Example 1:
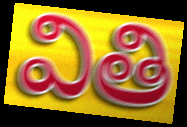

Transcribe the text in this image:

వితి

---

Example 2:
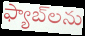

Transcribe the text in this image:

ఫ్యాబ్‌లను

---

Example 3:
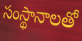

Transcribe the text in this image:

సంస్థానాలతో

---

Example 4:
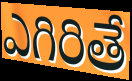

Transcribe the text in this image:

ఎగిరితే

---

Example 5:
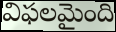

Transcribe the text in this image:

విఫలమైంది